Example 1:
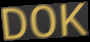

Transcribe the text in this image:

DOK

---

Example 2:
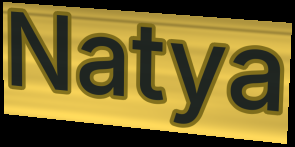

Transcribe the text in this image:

Natya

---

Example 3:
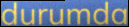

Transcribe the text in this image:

durumda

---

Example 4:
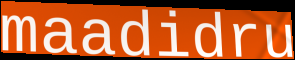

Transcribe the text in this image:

maadidru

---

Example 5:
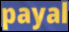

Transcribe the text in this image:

payal